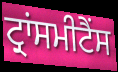
ਟ੍ਰਾਂਸਮੀਟੈਂਸ